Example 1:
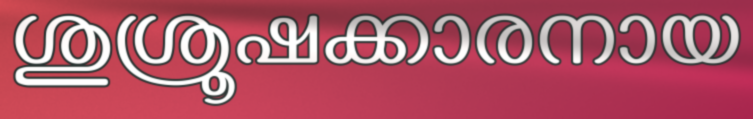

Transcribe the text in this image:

ശുശ്രൂഷക്കാരനായ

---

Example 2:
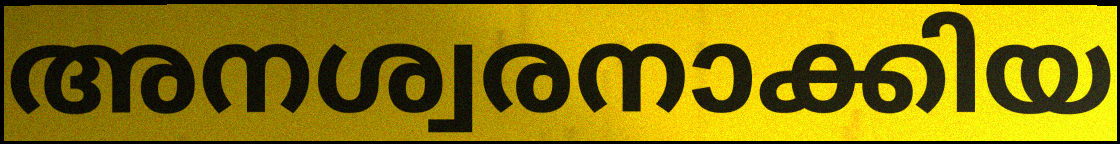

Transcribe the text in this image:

അനശ്വരനാക്കിയ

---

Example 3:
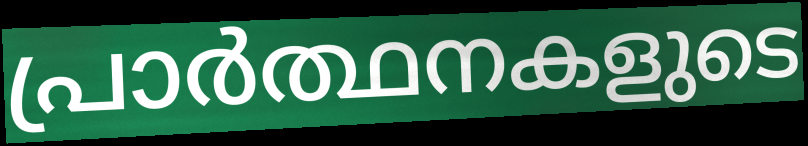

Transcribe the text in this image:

പ്രാർത്ഥനകളുടെ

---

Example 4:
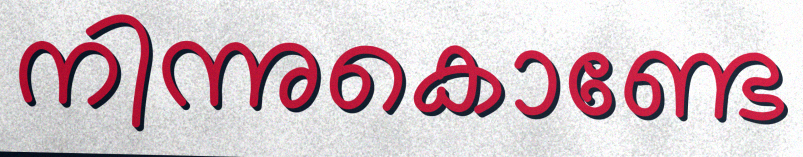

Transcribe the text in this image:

നിന്നുകൊണ്ടേ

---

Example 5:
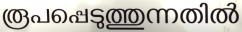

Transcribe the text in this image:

രൂപപ്പെടുത്തുന്നതിൽ